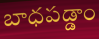
బాధపడ్డాం